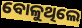
ବୋଳୁଥିଲେ